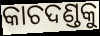
କାଚଦଣ୍ଡକୁ